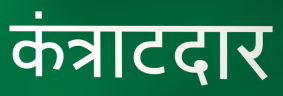
कंत्राटदार